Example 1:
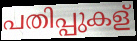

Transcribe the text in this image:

പതിപ്പുകള്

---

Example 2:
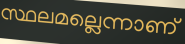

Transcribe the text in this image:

സ്ഥലമല്ലെന്നാണ്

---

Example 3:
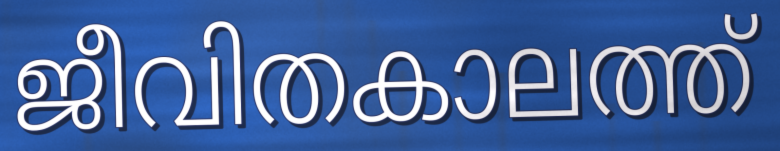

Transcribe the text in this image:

ജീവിതകാലത്ത്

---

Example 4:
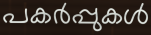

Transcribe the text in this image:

പകർപ്പുകൾ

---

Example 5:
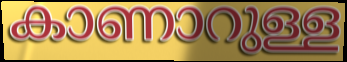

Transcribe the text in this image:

കാണാറുള്ള